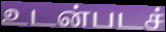
உடன்படச்